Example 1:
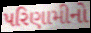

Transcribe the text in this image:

પરિણામીનો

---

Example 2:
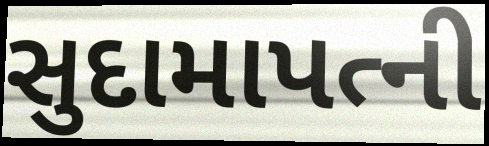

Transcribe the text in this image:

સુદામાપત્ની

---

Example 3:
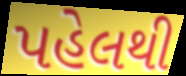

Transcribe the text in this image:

પહેલથી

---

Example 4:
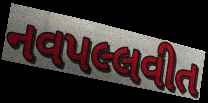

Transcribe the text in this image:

નવપલ્લવીત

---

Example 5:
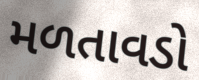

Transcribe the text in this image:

મળતાવડો